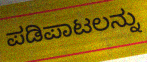
ಪಡಿಪಾಟಲನ್ನು